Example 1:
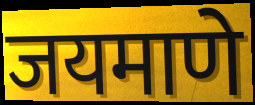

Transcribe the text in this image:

जयमाणे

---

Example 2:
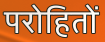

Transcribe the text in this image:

परोहितों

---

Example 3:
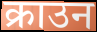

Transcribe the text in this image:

क्राउन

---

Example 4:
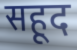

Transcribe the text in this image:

सहूद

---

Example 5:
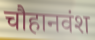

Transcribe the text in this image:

चौहानवंश